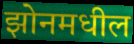
झोनमधील